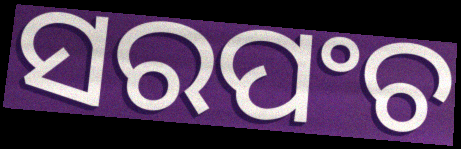
ସରପଂଚ